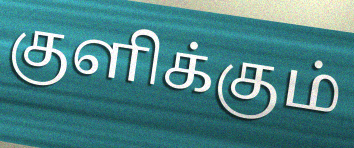
குளிக்கும்